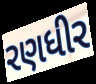
રણધીર